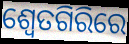
ଶ୍ୱେତଗିରିରେ